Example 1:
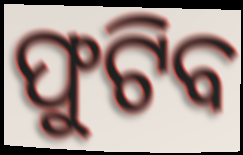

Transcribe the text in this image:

ଫୁଟିବ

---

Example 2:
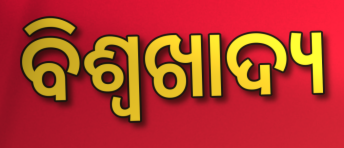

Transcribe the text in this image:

ବିଶ୍ୱଖାଦ୍ୟ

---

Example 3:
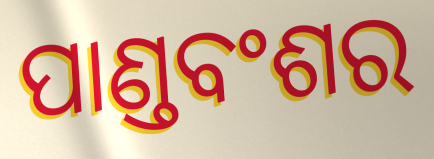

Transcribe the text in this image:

ପାଣ୍ଡବଂଶର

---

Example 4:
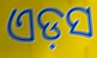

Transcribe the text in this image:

ଏଡ଼ସ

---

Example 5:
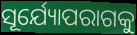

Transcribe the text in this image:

ସୂର୍ଯ୍ୟୋପରାଗକୁ